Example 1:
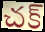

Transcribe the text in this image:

చక్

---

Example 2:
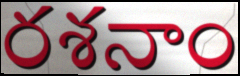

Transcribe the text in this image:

రశనాం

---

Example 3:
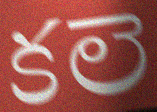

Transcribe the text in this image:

కలె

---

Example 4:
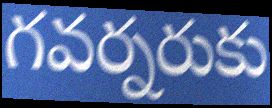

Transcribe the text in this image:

గవర్నరుకు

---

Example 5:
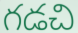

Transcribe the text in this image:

గడచి